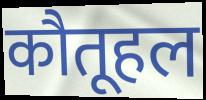
कौतूहल